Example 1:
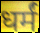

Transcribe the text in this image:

धर्म॑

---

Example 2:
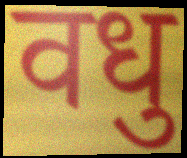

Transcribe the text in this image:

वधु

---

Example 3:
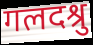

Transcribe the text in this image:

गलदश्रु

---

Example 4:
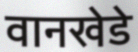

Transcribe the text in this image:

वानखेडे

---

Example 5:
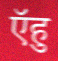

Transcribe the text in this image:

ऍहु